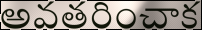
అవతరించాక